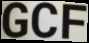
GCF